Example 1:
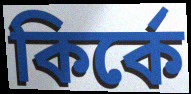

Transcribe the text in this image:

কির্কে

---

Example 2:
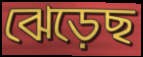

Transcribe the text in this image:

ঝেড়েছ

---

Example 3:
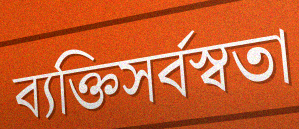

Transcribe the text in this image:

ব্যক্তিসর্বস্বতা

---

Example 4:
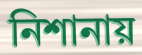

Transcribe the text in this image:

নিশানায়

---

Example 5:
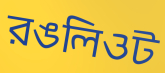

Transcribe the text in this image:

রঙলিওট